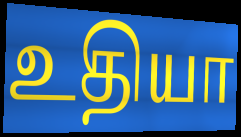
உதியா